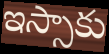
ఇస్సాకు